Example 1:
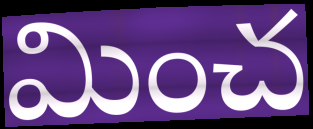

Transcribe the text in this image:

మించ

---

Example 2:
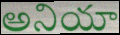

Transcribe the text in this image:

అనియా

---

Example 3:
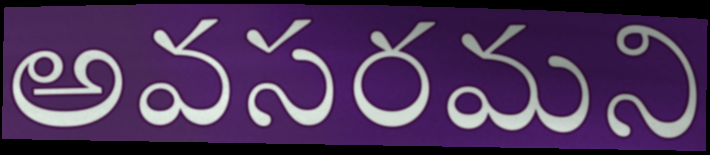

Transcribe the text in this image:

అవసరమని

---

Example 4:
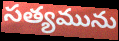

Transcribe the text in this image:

సత్యమును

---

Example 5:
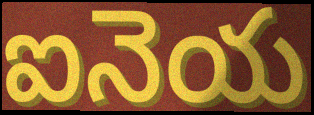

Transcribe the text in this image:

ఐనెయ